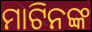
ମାଟିନଙ୍କ